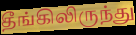
தீங்கிலிருந்து